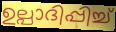
ഉല്പാദിപ്പിച്ച്